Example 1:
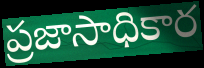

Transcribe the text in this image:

ప్రజాసాధికార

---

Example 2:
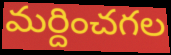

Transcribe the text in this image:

మర్దించగల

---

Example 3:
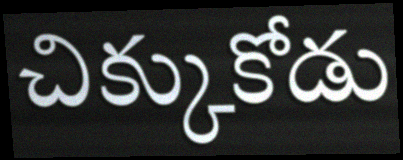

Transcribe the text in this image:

చిక్కుకోడు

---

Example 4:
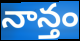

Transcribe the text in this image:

నాన్తం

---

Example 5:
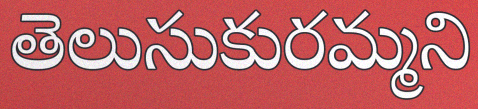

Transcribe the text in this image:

తెలుసుకురమ్మని